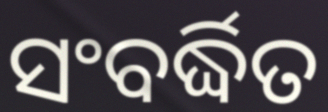
ସଂବର୍ଦ୍ଧିତ